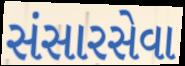
સંસારસેવા